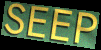
SEEP